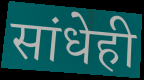
सांधेही